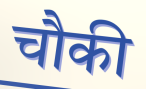
चौकी